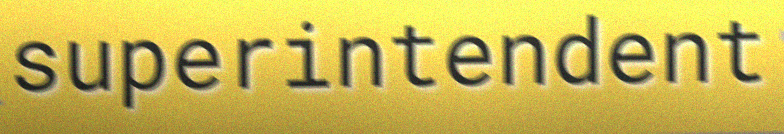
superintendent